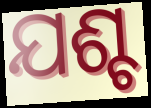
ଯଶ୍ଚ